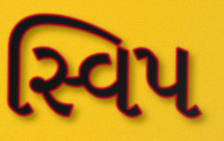
સ્વિપ